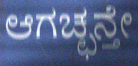
ಆಗಚ್ಛನ್ತೇ